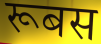
रूबस